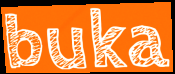
buka